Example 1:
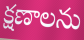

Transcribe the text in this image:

క్షణాలను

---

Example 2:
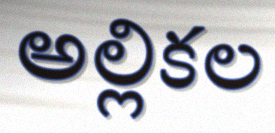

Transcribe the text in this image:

అల్లికల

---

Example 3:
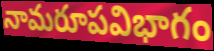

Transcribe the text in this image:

నామరూపవిభాగం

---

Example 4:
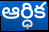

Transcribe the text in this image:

ఆర్ధిక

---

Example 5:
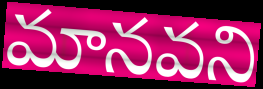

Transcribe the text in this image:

మానవని